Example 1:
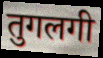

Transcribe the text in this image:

तुगलगी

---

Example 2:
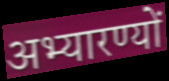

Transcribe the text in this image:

अभ्यारण्यों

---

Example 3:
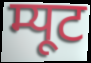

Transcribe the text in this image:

म्यूट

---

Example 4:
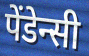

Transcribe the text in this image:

पेंडेन्सी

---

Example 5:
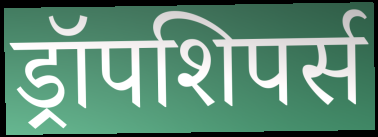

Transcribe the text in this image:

ड्रॉपशिपर्स